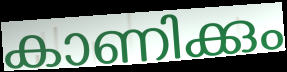
കാണിക്കും